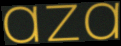
aza